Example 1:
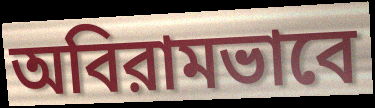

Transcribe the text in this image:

অবিরামভাবে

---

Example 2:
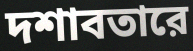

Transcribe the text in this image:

দশাবতারে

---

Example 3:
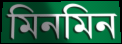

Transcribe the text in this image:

মিনমিন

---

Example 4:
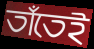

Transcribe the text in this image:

তাঁতেই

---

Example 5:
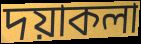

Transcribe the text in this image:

দয়াকলা